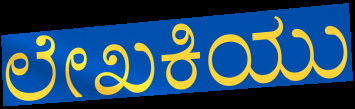
ಲೇಖಕಿಯು